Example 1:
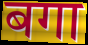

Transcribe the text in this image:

बगा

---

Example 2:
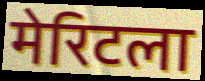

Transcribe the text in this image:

मेरिटला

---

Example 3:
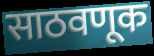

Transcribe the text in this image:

साठवणूक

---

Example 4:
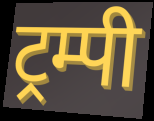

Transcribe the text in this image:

ट्रम्पी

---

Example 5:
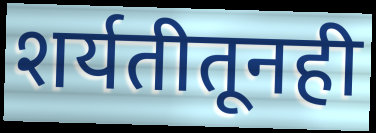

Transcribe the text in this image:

शर्यतीतूनही